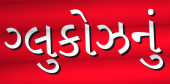
ગ્લુકોઝનું